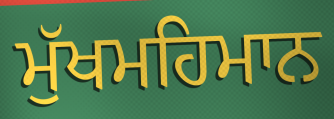
ਮੁੱਖਮਹਿਮਾਨ